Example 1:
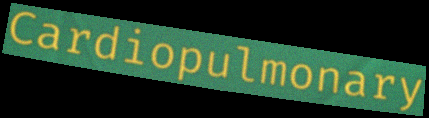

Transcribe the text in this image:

Cardiopulmonary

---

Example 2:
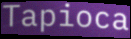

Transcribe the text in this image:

Tapioca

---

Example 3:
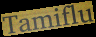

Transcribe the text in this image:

Tamiflu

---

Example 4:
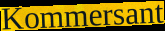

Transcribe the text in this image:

Kommersant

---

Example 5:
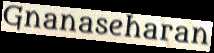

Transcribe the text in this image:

Gnanaseharan